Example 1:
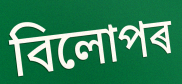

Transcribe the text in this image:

বিলোপৰ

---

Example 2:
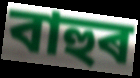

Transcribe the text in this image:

বাহুৰ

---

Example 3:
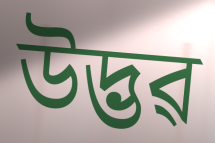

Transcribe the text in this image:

উদ্ভৱ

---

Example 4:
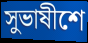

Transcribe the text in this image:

সুভাষীশে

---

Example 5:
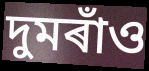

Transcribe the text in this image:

দুমৰাঁও